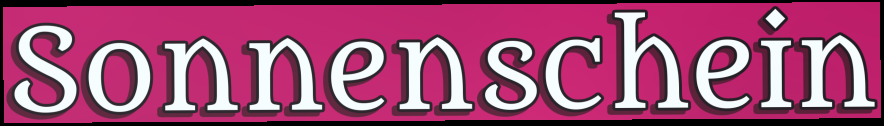
Sonnenschein